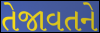
તેજાવતને